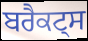
ਬਰੈਕਟ੍ਸ